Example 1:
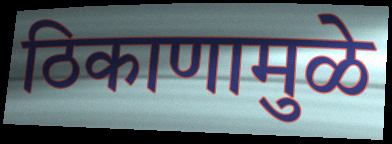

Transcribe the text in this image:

ठिकाणामुळे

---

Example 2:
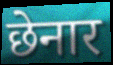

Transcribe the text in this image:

छेनार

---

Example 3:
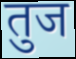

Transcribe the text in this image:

तुज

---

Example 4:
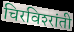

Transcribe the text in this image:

चिरविश्रांती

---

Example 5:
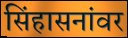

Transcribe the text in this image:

सिंहासनांवर